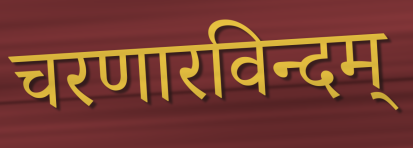
चरणारविन्दम्